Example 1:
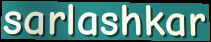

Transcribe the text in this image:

sarlashkar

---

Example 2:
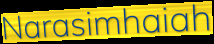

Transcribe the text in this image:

Narasimhaiah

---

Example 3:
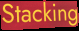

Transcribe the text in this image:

Stacking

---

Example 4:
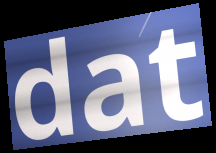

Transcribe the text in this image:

dat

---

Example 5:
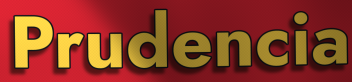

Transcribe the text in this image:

Prudencia